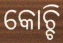
କୋଚ୍ଚି